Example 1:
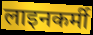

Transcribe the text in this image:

लाइनकर्मी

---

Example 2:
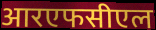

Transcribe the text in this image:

आरएफसीएल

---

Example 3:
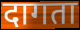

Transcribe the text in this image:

दागता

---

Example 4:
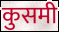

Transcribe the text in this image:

कुसमी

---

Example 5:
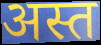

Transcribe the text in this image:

अस्त